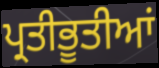
ਪ੍ਰਤੀਭੂਤੀਆਂ